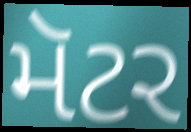
મૅટર